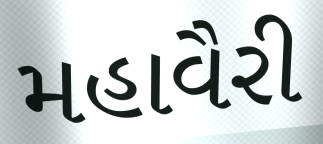
મહાવૈરી